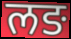
लङ